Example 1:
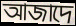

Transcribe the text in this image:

আজাদে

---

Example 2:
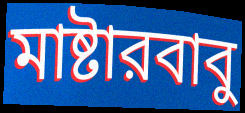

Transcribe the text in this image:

মাষ্টারবাবু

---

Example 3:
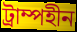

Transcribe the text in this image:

ট্রাম্পহীন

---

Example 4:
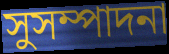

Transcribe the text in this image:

সুসম্পাদনা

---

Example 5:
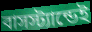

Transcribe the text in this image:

বাসস্ট্যান্ডেই